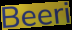
Beeri